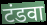
टंडवा